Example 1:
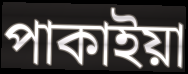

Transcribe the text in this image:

পাকাইয়া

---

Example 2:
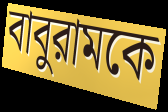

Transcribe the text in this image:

বাবুরামকে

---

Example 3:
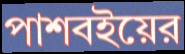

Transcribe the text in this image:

পাশবইয়ের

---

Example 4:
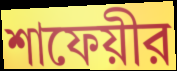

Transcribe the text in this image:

শাফেয়ীর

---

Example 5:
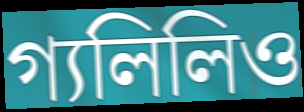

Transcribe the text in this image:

গ্যলিলিও